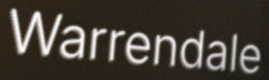
Warrendale